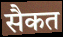
सैकत